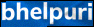
bhelpuri